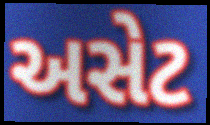
અસેટ